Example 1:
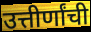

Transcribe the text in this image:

उत्तीर्णांची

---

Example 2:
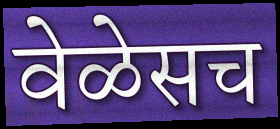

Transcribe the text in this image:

वेळेसच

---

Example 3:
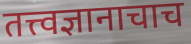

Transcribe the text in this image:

तत्त्वज्ञानाचाच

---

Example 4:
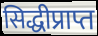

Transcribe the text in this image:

सिद्धीप्राप्त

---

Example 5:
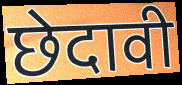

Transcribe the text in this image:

छेदावी